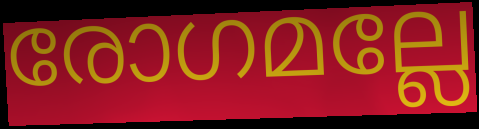
രോഗമല്ലേ